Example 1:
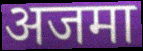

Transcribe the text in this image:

अजमा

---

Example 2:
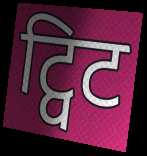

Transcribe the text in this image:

ट्विट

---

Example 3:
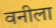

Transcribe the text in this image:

वनीला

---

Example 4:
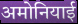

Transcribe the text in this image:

अमोनियाई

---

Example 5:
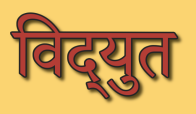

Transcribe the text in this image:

विद्‌युत